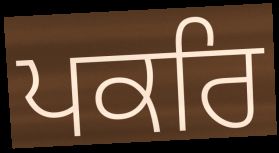
ਪਕਰਿ